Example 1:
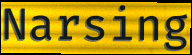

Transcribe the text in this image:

Narsing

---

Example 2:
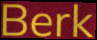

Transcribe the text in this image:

Berk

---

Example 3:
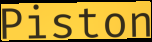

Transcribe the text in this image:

Piston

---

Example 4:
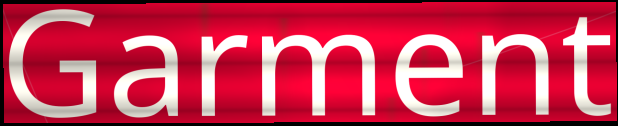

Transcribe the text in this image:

Garment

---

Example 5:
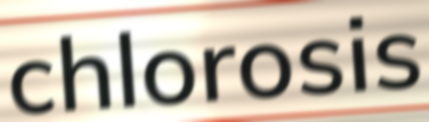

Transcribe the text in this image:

chlorosis